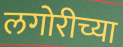
लगोरीच्या